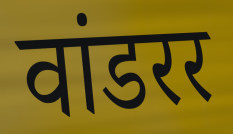
वांडरर